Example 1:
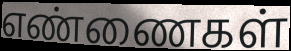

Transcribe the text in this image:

எண்ணைகள்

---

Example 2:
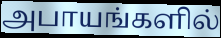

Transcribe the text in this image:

அபாயங்களில்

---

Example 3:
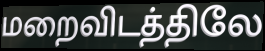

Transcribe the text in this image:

மறைவிடத்திலே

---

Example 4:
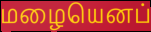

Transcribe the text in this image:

மழையெனப்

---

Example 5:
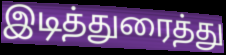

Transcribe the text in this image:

இடித்துரைத்து